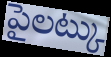
పైలట్కు